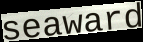
seaward